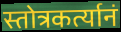
स्तोत्रकर्त्यानं